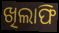
ଖିଲାଫି